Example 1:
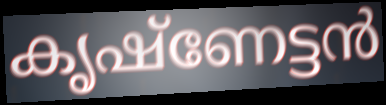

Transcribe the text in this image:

കൃഷ്ണേട്ടൻ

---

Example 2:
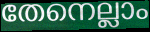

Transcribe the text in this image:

തേനെല്ലാം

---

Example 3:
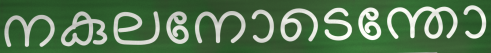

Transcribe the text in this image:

നകുലനോടെന്തോ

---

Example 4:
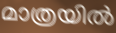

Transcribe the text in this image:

മാത്രയിൽ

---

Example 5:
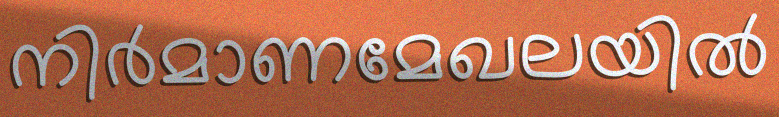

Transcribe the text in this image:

നിർമാണമേഖലയിൽ